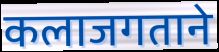
कलाजगताने